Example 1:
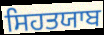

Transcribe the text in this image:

ਸਿਹਤਯਾਬ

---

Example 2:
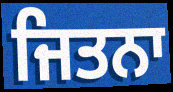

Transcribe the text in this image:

ਜਿਤਨਾ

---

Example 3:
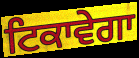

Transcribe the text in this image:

ਟਿਕਾਵੇਗਾ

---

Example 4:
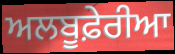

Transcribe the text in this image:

ਅਲਬੂਫ਼ੇਰੀਆ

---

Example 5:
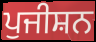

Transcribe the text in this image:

ਪੁਜੀਸ਼ਨ